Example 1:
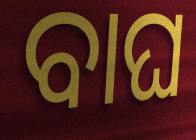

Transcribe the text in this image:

ବାଘ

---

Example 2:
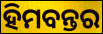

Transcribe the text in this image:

ହିମବନ୍ତର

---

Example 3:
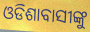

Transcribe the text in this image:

ଓଡିଶାବାସୀଙ୍କୁ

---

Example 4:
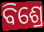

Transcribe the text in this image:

ବିଶ୍ରେ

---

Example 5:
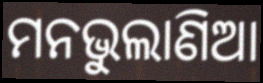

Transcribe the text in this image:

ମନଭୁଲାଣିଆ